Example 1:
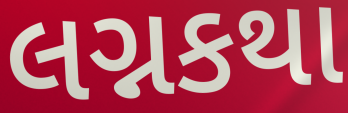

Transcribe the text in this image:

લગ્નકથા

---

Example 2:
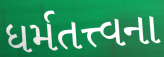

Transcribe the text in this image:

ધર્મતત્ત્વના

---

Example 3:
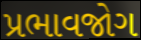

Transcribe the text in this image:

પ્રભાવજોગ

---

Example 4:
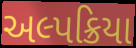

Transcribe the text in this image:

અલ્પક્રિયા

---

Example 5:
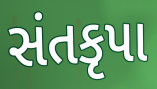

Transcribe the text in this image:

સંતકૃપા